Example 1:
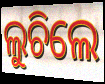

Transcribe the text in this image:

ଲୁଚିଲେ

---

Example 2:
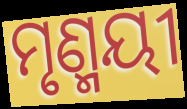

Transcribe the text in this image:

ମୃଣ୍ମୟୀ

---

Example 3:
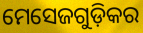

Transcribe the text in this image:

ମେସେଜଗୁଡ଼ିକର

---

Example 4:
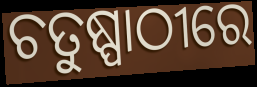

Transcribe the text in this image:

ଚତୁଷ୍ପାଠୀରେ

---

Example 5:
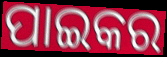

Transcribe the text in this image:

ପାଇକର